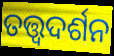
ତତ୍ତ୍ଵଦର୍ଶନ